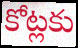
కోట్లకు